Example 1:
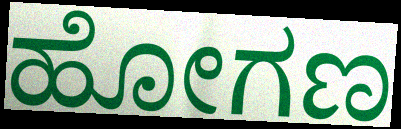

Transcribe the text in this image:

ಹೋಗಣ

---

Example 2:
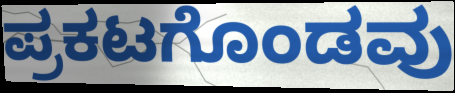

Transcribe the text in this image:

ಪ್ರಕಟಗೊಂಡವು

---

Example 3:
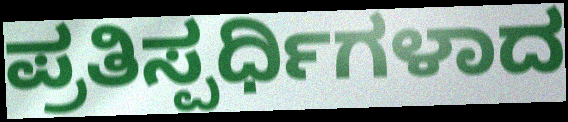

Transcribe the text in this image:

ಪ್ರತಿಸ್ಪರ್ಧಿಗಳಾದ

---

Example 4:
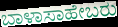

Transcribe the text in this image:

ಬಾಳಾಸಾಹೇಬರು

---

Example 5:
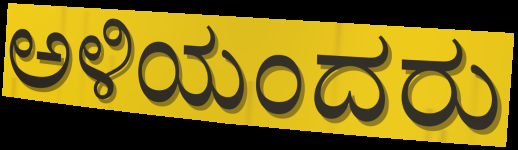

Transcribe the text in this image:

ಅಳಿಯಂದರು